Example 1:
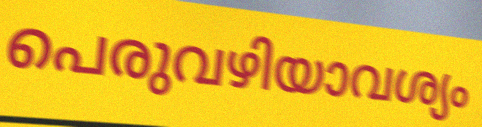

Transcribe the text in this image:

പെരുവഴിയാവശ്യം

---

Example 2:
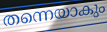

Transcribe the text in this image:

തന്നെയാകും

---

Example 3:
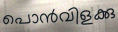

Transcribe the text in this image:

പൊൻവിളക്കു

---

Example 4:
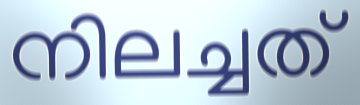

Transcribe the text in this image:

നിലച്ചത്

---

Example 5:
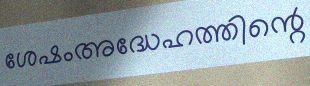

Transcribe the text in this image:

ശേഷംഅദ്ധേഹത്തിന്റെ